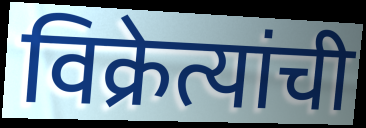
विक्रेत्यांची